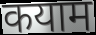
कयाम